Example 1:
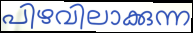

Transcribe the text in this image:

പിഴവിലാക്കുന്ന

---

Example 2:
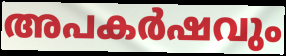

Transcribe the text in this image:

അപകർഷവും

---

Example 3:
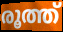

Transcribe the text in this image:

രൂത്ത്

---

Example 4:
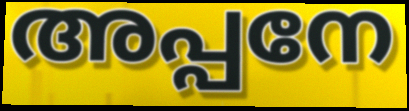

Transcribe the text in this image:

അപ്പനേ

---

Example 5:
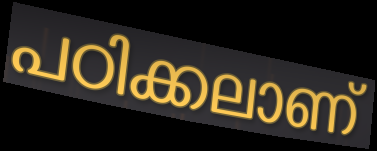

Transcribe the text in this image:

പഠിക്കലാണ്